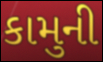
કામુની